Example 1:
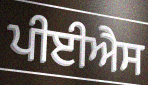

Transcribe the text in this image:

ਪੀਈਐਸ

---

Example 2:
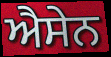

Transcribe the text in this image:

ਐਸੇਨ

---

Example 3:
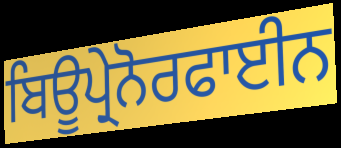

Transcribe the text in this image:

ਬਿਊਪ੍ਰੇਨੋਰਫਾਈਨ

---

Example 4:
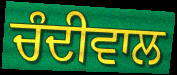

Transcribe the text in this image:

ਚੰਦੀਵਾਲ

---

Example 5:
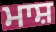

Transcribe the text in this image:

ਮਾਸ਼